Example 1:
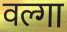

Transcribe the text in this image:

वल्गा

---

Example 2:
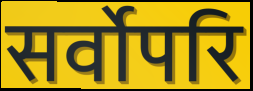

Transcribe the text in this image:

सर्वोपरि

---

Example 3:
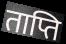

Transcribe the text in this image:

ताप्ति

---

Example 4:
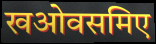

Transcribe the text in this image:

खओवसमिए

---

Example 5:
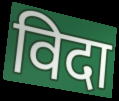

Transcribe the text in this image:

विदा